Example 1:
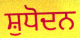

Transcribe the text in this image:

ਸ਼ੁਧੋਦਨ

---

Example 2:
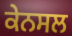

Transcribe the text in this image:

ਕੇਨਸਲ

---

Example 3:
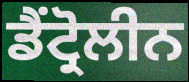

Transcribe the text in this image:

ਡੈਂਟ੍ਰੋਲੀਨ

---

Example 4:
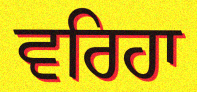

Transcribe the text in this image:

ਵਰਿਹਾ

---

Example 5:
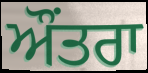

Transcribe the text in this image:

ਔਂਤਰਾ